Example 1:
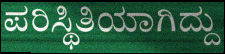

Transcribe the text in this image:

ಪರಿಸ್ಥಿತಿಯಾಗಿದ್ದು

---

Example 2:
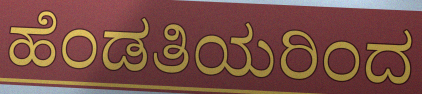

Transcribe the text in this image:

ಹೆಂಡತಿಯರಿಂದ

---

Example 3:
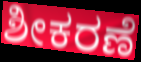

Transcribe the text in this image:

ಶೀಕರಣೆ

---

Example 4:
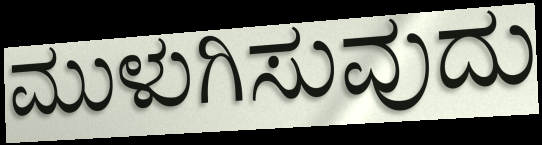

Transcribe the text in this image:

ಮುಳುಗಿಸುವುದು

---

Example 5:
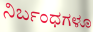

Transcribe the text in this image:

ನಿರ್ಬಂಧಗಳೂ